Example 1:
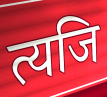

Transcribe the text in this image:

त्यजि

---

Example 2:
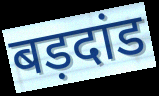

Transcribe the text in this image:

बड़दांड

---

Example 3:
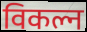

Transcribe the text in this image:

विकल्न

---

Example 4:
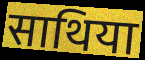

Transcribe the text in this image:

साथिया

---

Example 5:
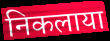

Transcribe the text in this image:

निकलाया